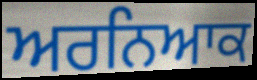
ਅਰਨਿਆਕ